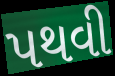
પથવી